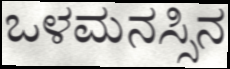
ಒಳಮನಸ್ಸಿನ